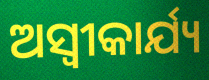
ଅସ୍ୱୀକାର୍ଯ୍ୟ